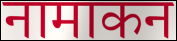
नामाकन